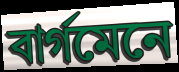
বাৰ্গমেনে